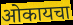
ओकायचा